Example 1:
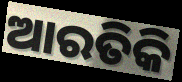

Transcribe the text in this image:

ଆରତିକି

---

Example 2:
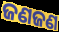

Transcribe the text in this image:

ଜଣଜଣ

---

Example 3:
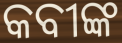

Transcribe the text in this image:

କବୀଙ୍କ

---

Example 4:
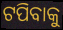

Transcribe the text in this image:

ଟପିବାକୁ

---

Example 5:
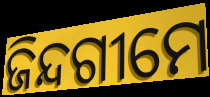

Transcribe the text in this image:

ଜିନ୍ଦଗୀମେ